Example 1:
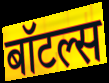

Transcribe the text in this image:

बॉटल्स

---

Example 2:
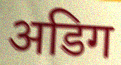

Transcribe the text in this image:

अडिग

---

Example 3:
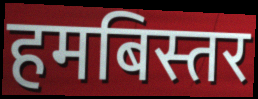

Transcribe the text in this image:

हमबिस्तर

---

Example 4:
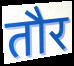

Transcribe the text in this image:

तौर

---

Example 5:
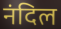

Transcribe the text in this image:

नंदिल